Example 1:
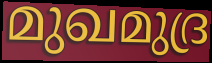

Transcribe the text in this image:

മുഖമുദ്ര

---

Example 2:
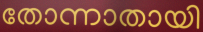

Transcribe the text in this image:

തോന്നാതായി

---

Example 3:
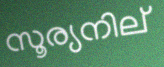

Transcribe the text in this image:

സൂര്യനില്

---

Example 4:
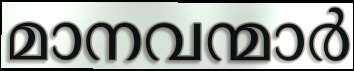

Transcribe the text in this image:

മാനവന്മാർ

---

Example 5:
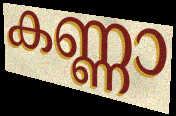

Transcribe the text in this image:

കണ്ണാ